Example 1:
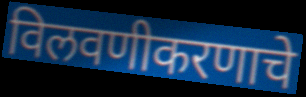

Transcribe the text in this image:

विलवणीकरणाचे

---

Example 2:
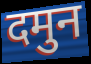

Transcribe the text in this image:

दमुन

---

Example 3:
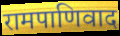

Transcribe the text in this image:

रामपाणिवाद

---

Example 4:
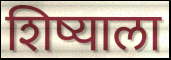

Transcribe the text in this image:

शिष्याला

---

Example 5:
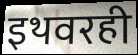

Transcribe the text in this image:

इथवरही